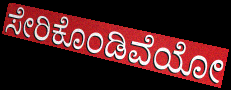
ಸೇರಿಕೊಂಡಿವೆಯೋ